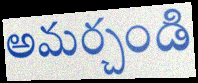
అమర్చండి